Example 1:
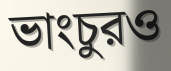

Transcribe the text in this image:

ভাংচুরও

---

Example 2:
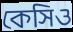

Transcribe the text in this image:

কেসিও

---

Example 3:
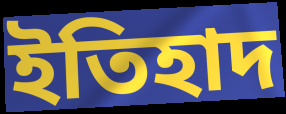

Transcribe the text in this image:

ইতিহাদ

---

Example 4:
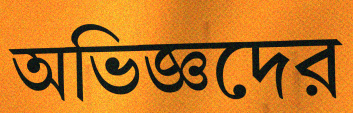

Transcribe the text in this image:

অভিজ্ঞদের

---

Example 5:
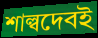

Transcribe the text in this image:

শাল্বদেবই